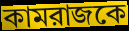
কামরাজকে